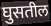
घुसतील